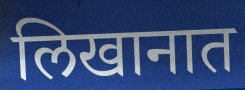
लिखानात